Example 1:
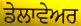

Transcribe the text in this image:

ਡੇਲਾਵੇਅਰ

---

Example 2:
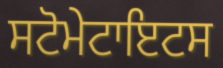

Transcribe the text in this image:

ਸਟੋਮੇਟਾਇਟਸ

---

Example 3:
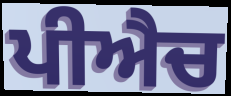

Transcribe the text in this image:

ਪੀਐਚ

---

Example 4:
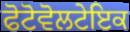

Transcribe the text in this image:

ਫੋਟੋਵੋਲਟੇਇਕ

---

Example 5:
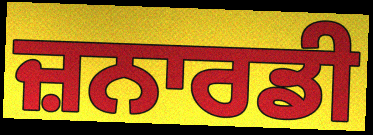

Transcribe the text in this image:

ਜ਼ਨਾਰਡੀ